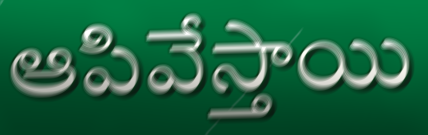
ఆపివేస్తాయి